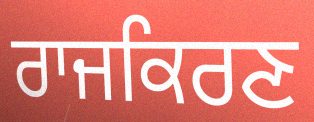
ਰਾਜਕਿਰਣ